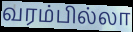
வரம்பில்லா